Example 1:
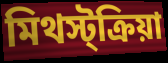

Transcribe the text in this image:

মিথস্ট্ক্রিয়া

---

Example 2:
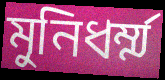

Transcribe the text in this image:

মুনিধর্ম্ম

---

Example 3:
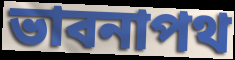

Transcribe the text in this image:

ভাবনাপথ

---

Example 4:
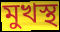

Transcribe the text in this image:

মুখস্থ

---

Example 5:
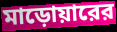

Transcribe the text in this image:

মাড়োয়ারের